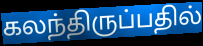
கலந்திருப்பதில்